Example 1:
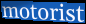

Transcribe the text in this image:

motorist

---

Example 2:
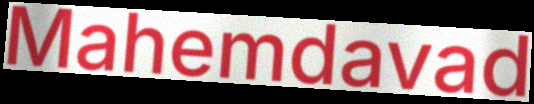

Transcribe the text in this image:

Mahemdavad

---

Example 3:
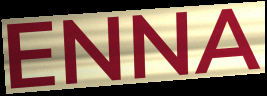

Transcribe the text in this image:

ENNA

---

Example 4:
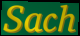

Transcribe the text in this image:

Sach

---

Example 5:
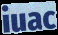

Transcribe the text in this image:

iuac